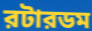
রটারডম